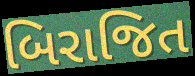
બિરાજિત